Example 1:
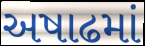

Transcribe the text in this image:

અષાઢમાં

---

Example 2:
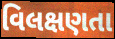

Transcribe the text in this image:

વિલક્ષણતા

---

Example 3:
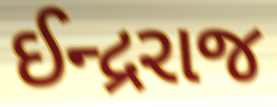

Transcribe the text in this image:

ઈન્દ્રરાજ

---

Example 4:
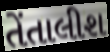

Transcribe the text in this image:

તેંતાલીશ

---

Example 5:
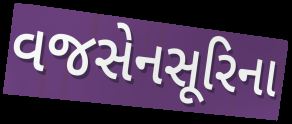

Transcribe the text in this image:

વજસેનસૂરિના